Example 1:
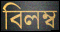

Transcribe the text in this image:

বিলম্ব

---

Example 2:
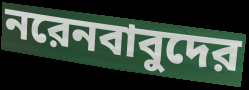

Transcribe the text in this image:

নরেনবাবুদের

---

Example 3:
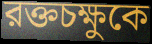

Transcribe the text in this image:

রক্তচক্ষুকে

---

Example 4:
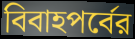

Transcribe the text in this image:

বিবাহপর্বের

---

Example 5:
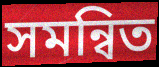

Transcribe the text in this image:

সমন্বিত